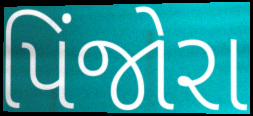
પિંજોરા